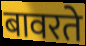
बावरते